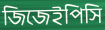
জিজেইপিসি